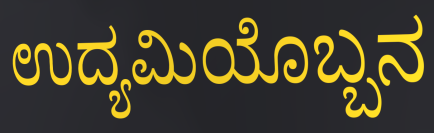
ಉದ್ಯಮಿಯೊಬ್ಬನ